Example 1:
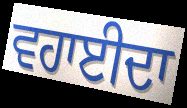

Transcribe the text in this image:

ਵਹਾਈਦਾ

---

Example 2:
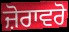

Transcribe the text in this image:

ਜ਼ੋਰਾਵਰੋ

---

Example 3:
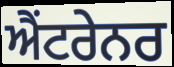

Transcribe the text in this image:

ਐਂਟਰੇਨਰ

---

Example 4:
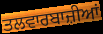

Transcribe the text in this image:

ਤਲਵਾਰਬਾਜ਼ੀਆਂ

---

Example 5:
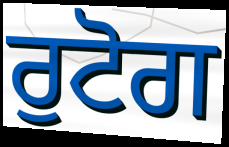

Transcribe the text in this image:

ਰੁਟੋਗ